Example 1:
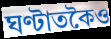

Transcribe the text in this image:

ঘণ্টাতকৈও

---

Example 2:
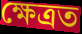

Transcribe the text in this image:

ক্ষেত্ৰত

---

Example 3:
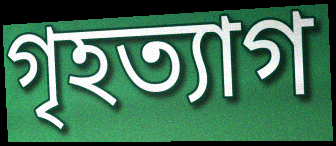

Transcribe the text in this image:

গৃহত্যাগ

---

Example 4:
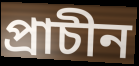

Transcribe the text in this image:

প্ৰাচীন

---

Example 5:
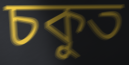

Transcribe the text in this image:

চকুত